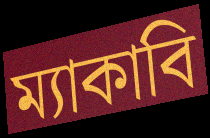
ম্যাকাবি